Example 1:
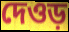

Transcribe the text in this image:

দেওড়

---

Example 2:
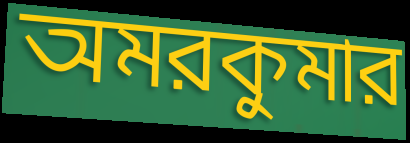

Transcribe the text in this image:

অমরকুমার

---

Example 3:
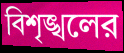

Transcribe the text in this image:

বিশৃঙ্খলের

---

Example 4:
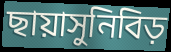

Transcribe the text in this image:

ছায়াসুনিবিড়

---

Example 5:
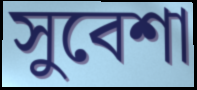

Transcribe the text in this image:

সুবেশা